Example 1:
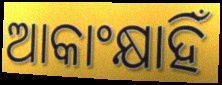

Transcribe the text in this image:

ଆକାଂକ୍ଷାହିଁ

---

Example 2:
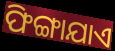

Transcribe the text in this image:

ଫିଙ୍ଗାଯାଏ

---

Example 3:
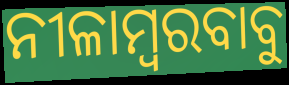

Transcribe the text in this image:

ନୀଳାମ୍ବରବାବୁ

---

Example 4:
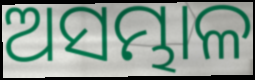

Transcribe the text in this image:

ଅସମ୍ଭାଳ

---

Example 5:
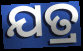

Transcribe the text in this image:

ଯତ୍ର